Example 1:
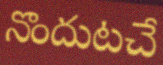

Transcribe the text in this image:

నొందుటచే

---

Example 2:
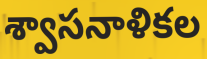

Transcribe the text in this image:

శ్వాసనాళికల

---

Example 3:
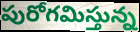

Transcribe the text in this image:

పురోగమిస్తున్న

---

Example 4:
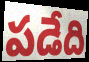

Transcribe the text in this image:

పడేది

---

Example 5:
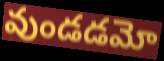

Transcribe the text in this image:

వుండడమో